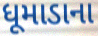
ધૂમાડાના